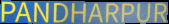
PANDHARPUR